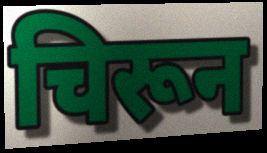
चिरून